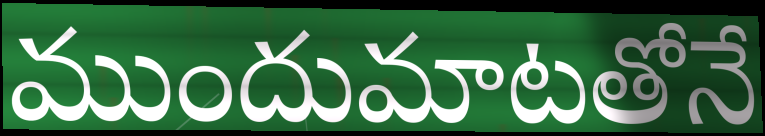
ముందుమాటతోనే